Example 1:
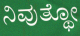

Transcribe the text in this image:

ನಿವುತ್ಥೋ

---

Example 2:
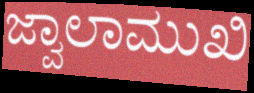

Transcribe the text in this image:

ಜ್ವಾಲಾಮುಖಿ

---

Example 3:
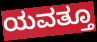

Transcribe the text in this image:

ಯವತ್ತೂ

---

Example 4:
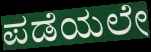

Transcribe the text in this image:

ಪಡೆಯಲೇ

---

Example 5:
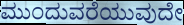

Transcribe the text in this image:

ಮುಂದುವರೆಯುವುದೇ